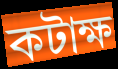
কটাক্ষ